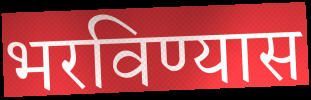
भरविण्यास